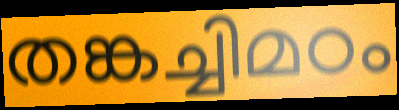
തങ്കച്ചിമഠം